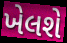
ખેલશે